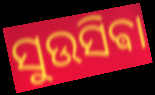
ସୁଉସିଵା